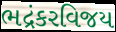
ભદ્રંકરવિજય